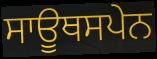
ਸਾਊਥਸਪੇਨ